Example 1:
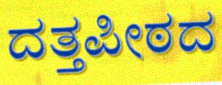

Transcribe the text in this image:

ದತ್ತಪೀಠದ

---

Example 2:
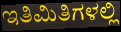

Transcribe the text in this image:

ಇತಿಮಿತಿಗಳಲ್ಲಿ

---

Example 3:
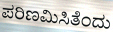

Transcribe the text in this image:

ಪರಿಣಮಿಸಿತೆಂದು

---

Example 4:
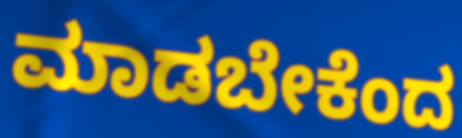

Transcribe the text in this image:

ಮಾಡಬೇಕೆಂದ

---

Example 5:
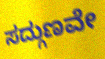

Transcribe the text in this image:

ಸದ್ಗುಣವೇ